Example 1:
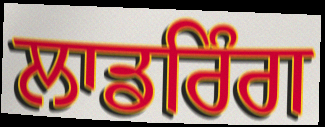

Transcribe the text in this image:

ਲਾਡਰਿੰਗ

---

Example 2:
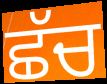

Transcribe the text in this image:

ਛੱਚ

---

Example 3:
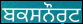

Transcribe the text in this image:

ਬਕਸਨੌਰਟ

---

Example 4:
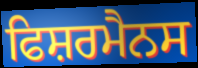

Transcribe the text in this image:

ਫਿਸ਼ਰਮੈਨਸ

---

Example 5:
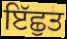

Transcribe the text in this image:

ਇੱਛੁਤ